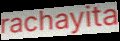
rachayita